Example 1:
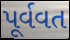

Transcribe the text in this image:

પૂર્વવત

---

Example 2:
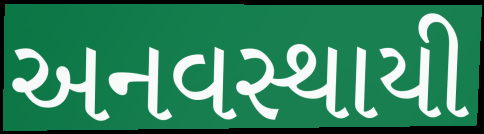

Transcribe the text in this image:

અનવસ્થાયી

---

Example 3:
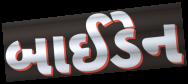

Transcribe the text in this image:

બાઈડેન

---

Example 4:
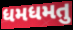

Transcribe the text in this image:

ધમધમતુ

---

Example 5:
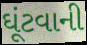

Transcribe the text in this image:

ઘૂંટવાની